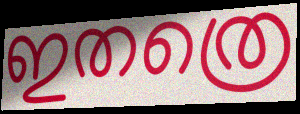
ഇതത്രെ